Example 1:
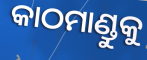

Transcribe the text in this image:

କାଠମାଣ୍ଡୁକୁ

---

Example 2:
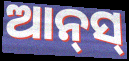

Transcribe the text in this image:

ଆନ୍‌ସ୍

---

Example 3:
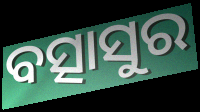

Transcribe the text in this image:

ବତ୍ସାସୁର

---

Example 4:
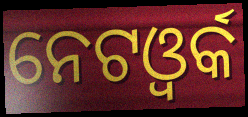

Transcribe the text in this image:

ନେଟଓ୍ବର୍କ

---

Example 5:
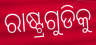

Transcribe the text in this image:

ରାଷ୍ଟ୍ରଗୁଡିକୁ